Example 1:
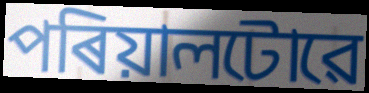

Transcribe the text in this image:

পৰিয়ালটোৱে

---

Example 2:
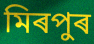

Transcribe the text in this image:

মিৰপুৰ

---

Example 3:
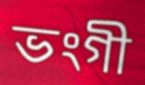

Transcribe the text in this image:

ভংগী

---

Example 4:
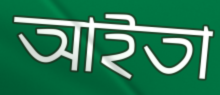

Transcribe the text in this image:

আইতা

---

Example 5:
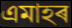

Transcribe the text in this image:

এমাহৰ